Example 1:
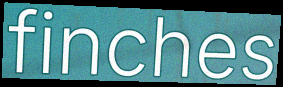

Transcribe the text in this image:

finches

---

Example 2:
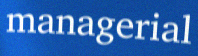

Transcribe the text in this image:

managerial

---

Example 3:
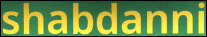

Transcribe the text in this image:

shabdanni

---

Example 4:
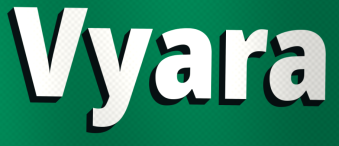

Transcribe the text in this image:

Vyara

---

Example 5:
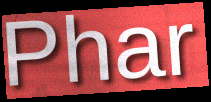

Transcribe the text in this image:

Phar